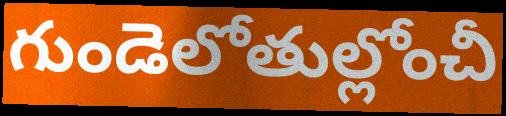
గుండెలోతుల్లోంచీ